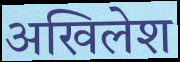
अखिलेश